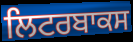
ਲਿਟਰਬਾਕਸ